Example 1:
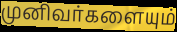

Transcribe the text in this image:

முனிவர்களையும்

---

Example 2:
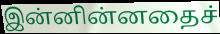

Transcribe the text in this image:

இன்னின்னதைச்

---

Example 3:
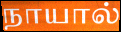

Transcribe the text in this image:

நாயால்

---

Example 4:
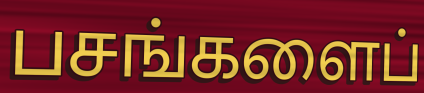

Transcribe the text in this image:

பசங்களைப்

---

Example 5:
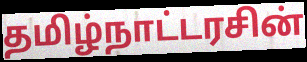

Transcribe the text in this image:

தமிழ்நாட்டரசின்